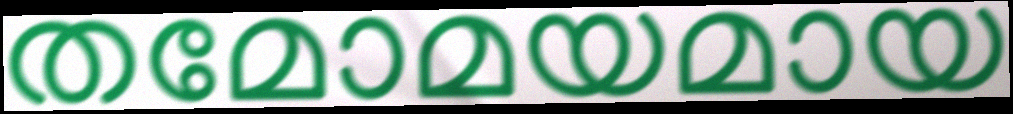
തമോമയമായ